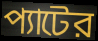
প্যাটের